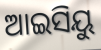
ଆଇସିୟୁ